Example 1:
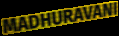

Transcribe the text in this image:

MADHURAVANI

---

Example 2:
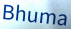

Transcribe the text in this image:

Bhuma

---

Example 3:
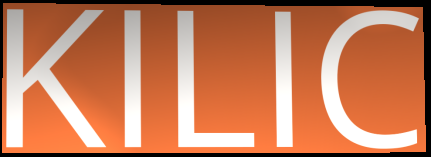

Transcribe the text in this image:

KILIC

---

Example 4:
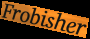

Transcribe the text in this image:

Frobisher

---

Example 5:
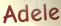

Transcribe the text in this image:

Adele